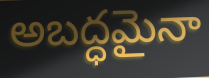
అబద్ధమైనా